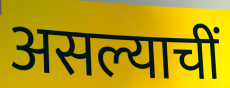
असल्याचीं